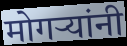
मोगऱ्यांनी